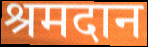
श्रमदान